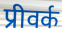
प्रीवर्क